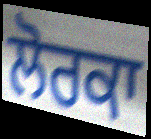
ਲੋਰਕਾ